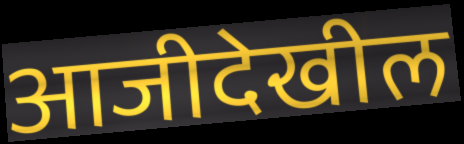
आजीदेखील